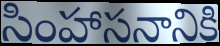
సింహాసనానికి